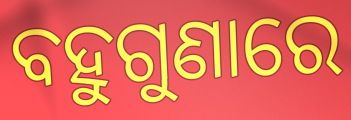
ବହୁଗୁଣାରେ